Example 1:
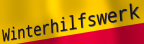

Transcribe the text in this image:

Winterhilfswerk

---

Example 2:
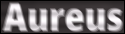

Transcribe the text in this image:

Aureus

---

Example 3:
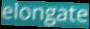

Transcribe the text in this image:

elongate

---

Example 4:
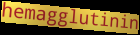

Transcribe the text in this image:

hemagglutinin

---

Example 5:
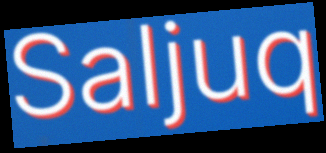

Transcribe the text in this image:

Saljuq